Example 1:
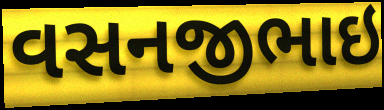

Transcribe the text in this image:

વસનજીભાઇ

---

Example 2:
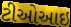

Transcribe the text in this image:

ટીઓઆઇ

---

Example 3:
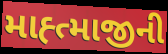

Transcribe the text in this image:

માહ્ત્માજીની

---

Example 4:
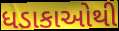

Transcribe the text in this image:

ધડાકાઓથી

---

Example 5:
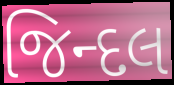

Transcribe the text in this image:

જિન્દલ